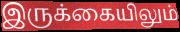
இருக்கையிலும்